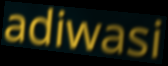
adiwasi